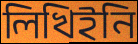
লিখিইনি